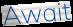
Await